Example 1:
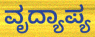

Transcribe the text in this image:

ವೃದ್ಯಾಪ್ಯ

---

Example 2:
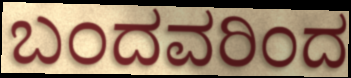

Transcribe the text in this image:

ಬಂದವರಿಂದ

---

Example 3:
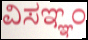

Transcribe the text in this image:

ವಿಸಞ್ಞಂ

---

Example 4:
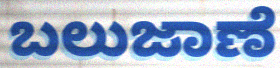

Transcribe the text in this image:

ಬಲುಜಾಣೆ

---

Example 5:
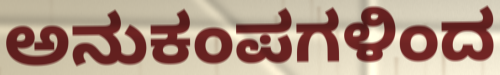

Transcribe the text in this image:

ಅನುಕಂಪಗಳಿಂದ